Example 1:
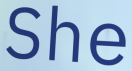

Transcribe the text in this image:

She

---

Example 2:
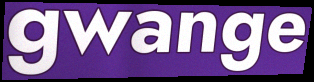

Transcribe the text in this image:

gwange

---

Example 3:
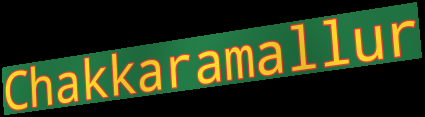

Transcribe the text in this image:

Chakkaramallur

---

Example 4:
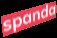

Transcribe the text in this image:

spanda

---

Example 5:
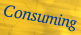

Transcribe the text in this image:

Consuming